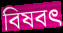
বিষবৎ